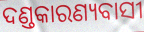
ଦଣ୍ଡକାରଣ୍ୟବାସୀ